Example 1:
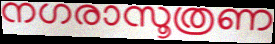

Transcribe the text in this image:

നഗരാസൂത്രണ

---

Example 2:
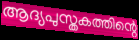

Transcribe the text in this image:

ആദ്യപുസ്തകത്തിന്റെ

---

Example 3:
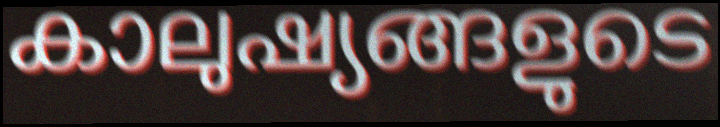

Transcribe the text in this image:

കാലുഷ്യങ്ങളുടെ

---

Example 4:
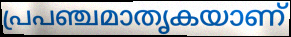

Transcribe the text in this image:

പ്രപഞ്ചമാതൃകയാണ്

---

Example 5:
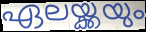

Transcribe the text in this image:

ഏലയ്ക്കയും